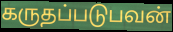
கருதப்படுபவன்